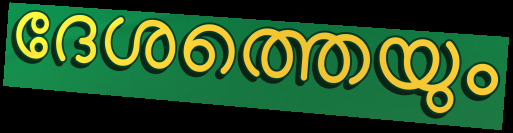
ദേശത്തെയും